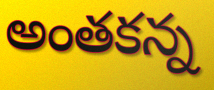
అంతకన్న